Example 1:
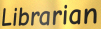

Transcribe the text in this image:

Librarian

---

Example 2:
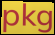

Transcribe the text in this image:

pkg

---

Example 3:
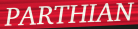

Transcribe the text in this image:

PARTHIAN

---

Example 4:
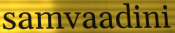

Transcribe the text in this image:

samvaadini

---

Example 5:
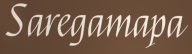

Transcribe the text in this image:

Saregamapa